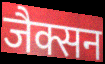
जैक्सन